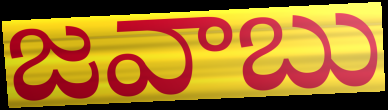
జవాబు